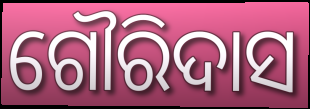
ଗୌରିଦାସ